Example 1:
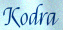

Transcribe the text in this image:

Kodra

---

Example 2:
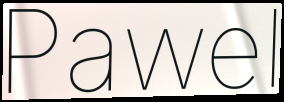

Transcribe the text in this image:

Pawel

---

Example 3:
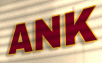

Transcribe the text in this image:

ANK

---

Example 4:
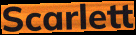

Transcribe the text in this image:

Scarlett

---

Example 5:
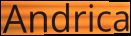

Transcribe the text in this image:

Andrica